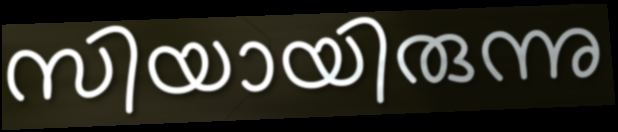
സിയായിരുന്നു